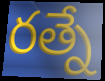
రత్నే